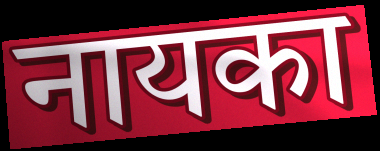
नायका